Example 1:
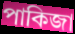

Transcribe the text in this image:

পাকিজা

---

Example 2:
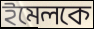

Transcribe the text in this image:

ইমেলকে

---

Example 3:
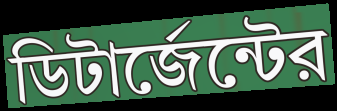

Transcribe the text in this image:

ডিটার্জেন্টের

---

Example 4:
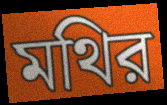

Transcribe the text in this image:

মথির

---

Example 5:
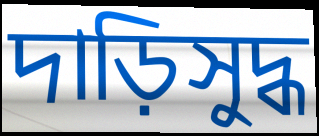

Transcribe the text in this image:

দাড়িসুদ্ধ